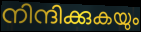
നിന്ദിക്കുകയും